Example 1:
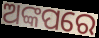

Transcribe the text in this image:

ଅଙ୍କପରେ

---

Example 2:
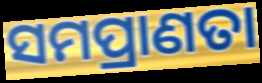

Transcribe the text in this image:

ସମପ୍ରାଣତା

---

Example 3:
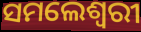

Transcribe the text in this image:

ସମଲେଶ୍ୱରୀ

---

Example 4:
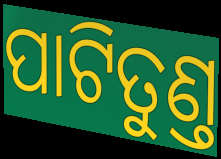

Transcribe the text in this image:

ପାଟିତୁଣ୍ତ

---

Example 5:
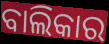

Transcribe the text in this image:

ବାଲିକାର